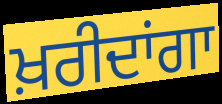
ਖ਼ਰੀਦਾਂਗਾ